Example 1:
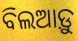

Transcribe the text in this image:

ବିଲଆଡ଼ୁ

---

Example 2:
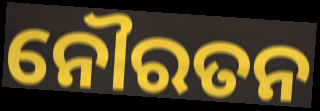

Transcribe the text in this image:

ନୌରତନ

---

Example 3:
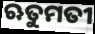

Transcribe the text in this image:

ଋତୁମତୀ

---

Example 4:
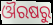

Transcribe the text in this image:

ଔରଷରୁ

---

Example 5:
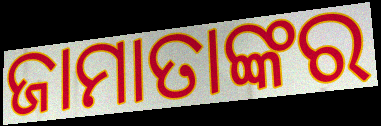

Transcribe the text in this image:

ଜାମାତାଙ୍କର